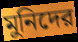
মুনিদের